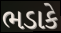
ભડાકે